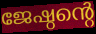
ജേഷ്ഠന്റെ